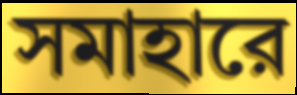
সমাহারে